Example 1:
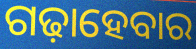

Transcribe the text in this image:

ଗଢ଼ାହେବାର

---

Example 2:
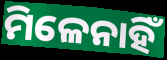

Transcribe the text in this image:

ମିଳେନାହିଁ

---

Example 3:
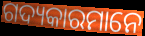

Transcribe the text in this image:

ଗଦ୍ୟକାରମାନେ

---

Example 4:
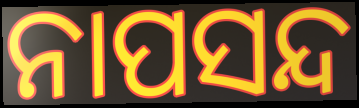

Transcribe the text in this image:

ନାପସନ୍ଦ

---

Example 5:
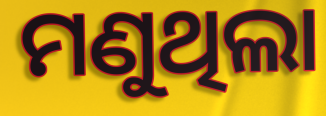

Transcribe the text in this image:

ମଣୁଥିଲା